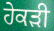
ਹੇਕੜੀ